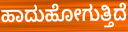
ಹಾದುಹೋಗುತ್ತಿದೆ